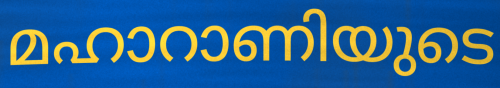
മഹാറാണിയുടെ